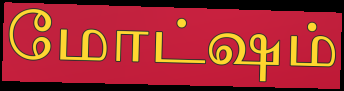
மோட்ஷம்